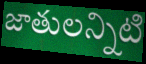
జాతులన్నిటి